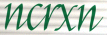
ncrxn